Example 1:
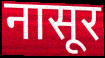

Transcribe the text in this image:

नासूर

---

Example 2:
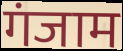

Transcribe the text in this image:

गंजाम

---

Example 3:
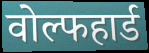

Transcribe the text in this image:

वोल्फहार्ड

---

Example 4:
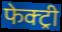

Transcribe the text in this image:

फेक्ट्री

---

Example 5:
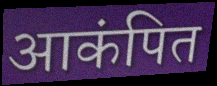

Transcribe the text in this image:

आकंपित